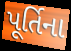
પૂર્તિના